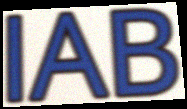
IAB